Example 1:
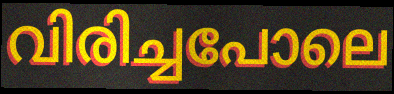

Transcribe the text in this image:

വിരിച്ചപോലെ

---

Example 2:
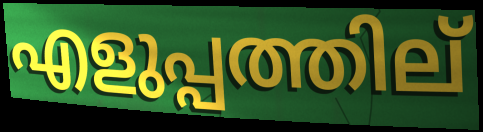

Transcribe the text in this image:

എളുപ്പത്തില്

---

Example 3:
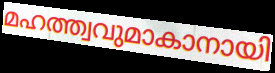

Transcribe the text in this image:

മഹത്ത്വവുമാകാനായി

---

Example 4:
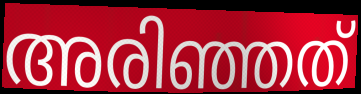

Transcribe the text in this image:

അരിഞ്ഞത്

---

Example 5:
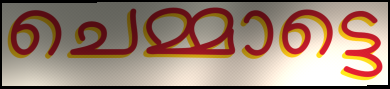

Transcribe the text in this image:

ചെമ്മാട്ടെ